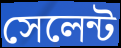
সেলেন্ট